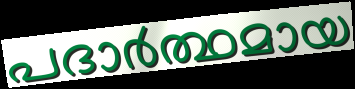
പദാർത്ഥമായ